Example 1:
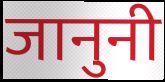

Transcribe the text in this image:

जानुनी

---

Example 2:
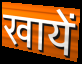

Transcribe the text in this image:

खायें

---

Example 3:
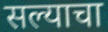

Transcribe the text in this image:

सल्याचा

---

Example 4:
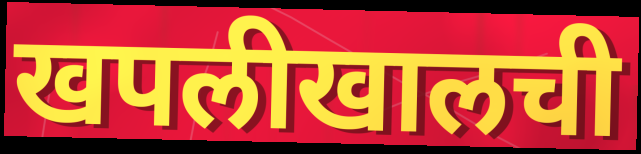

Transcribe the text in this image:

खपलीखालची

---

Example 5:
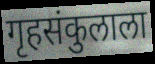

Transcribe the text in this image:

गृहसंकुलाला